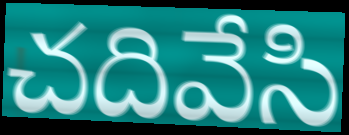
చదివేసి